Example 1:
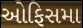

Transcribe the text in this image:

ઓફિસમા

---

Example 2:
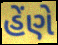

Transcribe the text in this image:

હેંણે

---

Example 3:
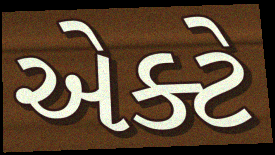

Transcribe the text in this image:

એક્ટે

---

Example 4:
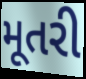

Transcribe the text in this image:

મૂતરી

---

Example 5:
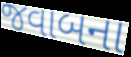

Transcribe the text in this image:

જવાબના